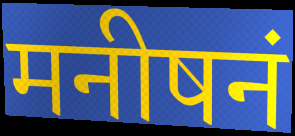
मनीषनं